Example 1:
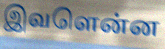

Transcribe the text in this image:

இவளென்ன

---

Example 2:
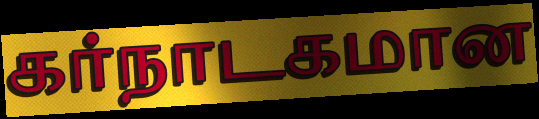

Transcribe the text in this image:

கர்நாடகமான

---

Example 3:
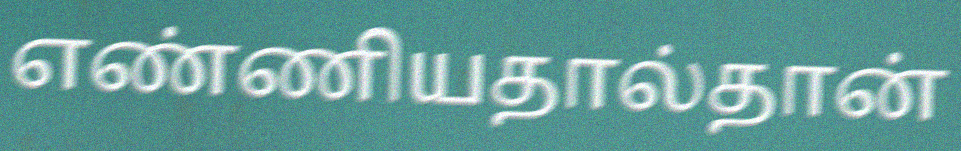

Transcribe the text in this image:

எண்ணியதால்தான்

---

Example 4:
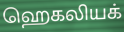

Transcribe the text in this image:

ஹெகலியக்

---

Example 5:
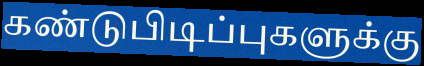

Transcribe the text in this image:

கண்டுபிடிப்புகளுக்கு